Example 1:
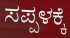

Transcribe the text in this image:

ಸಪ್ಪಳಕ್ಕೆ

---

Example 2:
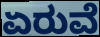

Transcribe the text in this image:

ಏರುವೆ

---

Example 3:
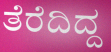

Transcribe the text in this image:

ತೆರೆದಿದ್ದ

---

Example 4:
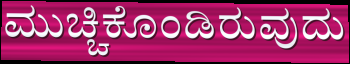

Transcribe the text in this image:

ಮುಚ್ಚಿಕೊಂಡಿರುವುದು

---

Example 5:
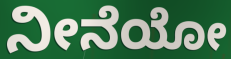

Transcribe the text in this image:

ನೀನೆಯೋ